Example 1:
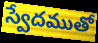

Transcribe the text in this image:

స్వేదముతో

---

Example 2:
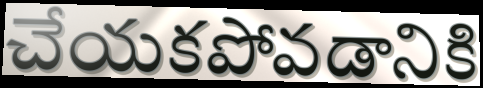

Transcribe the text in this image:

చేయకపోవడానికి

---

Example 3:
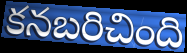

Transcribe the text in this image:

కనబరిచింది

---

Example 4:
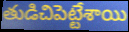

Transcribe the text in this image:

తుడిచిపెట్టేశాయి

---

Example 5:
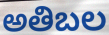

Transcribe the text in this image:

అతిబల